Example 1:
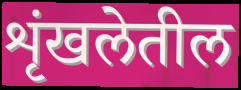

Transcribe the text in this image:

शृंखलेतील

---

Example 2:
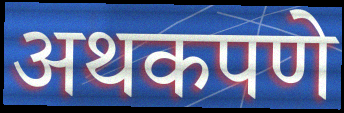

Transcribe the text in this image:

अथकपणे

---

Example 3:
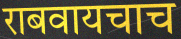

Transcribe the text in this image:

राबवायचाच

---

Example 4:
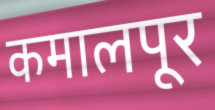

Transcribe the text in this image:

कमालपूर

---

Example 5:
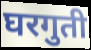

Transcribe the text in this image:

घरगुती